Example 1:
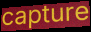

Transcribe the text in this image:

capture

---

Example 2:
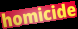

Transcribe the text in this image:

homicide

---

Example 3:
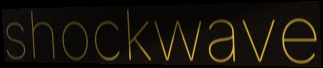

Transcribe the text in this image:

shockwave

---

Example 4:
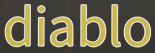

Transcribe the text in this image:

diablo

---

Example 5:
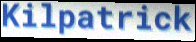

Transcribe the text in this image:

Kilpatrick